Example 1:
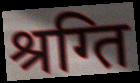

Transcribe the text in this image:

श्रग्ति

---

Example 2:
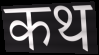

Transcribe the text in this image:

कथ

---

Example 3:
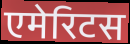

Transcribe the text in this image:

एमेरिटस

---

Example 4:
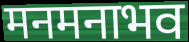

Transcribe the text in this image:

मनमनाभव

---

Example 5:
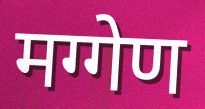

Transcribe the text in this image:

मग्गेण